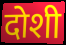
दोशी